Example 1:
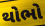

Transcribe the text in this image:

થોભો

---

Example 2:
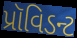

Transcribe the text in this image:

પ્રૉવિડન્ટ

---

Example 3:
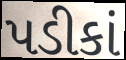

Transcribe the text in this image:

પડીકાં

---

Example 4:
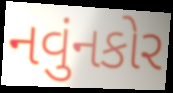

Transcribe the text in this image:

નવુંનકોર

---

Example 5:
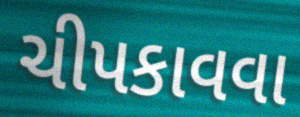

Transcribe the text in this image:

ચીપકાવવા